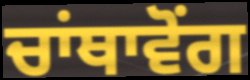
ਚਾਂਥਾਵੋਂਗ